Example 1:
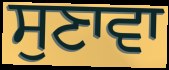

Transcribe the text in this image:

ਸੁਣਾਵਾ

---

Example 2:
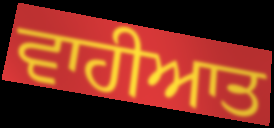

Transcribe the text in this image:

ਵਾਹੀਆਤ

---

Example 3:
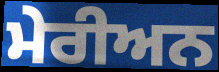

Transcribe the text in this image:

ਮੇਰੀਅਨ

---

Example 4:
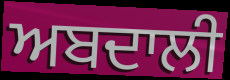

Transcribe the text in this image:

ਅਬਦਾਲੀ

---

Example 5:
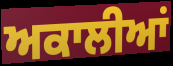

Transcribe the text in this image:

ਅਕਾਲੀਆਂ